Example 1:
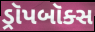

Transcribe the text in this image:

ડ્રૉપબૉક્સ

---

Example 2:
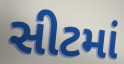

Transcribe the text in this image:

સીટમાં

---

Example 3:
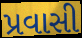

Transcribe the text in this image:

પ્રવાસી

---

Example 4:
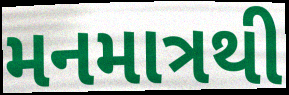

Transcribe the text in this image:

મનમાત્રથી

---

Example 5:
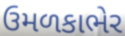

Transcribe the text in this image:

ઉમળકાભેર